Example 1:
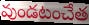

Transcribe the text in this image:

వుండటంచేత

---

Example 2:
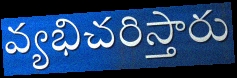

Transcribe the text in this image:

వ్యభిచరిస్తారు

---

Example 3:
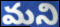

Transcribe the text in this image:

మని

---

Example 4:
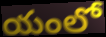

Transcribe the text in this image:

యంలో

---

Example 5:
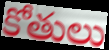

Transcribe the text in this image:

కోతులు